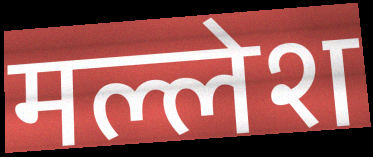
मल्लेश